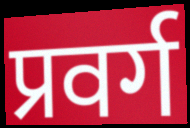
प्रवर्ग